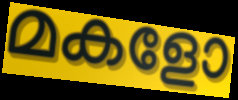
മകളോ